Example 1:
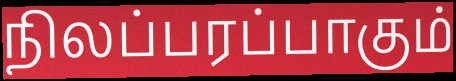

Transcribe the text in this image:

நிலப்பரப்பாகும்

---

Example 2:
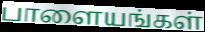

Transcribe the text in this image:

பாளையங்கள்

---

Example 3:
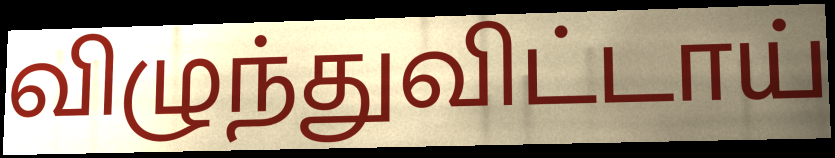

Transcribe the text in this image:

விழுந்துவிட்டாய்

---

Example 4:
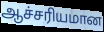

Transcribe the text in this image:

ஆச்சரியமான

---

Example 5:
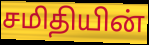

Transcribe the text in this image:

சமிதியின்